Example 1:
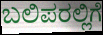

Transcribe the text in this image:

ಬಲಿಪರಲ್ಲಿಗೆ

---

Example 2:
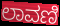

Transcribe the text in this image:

ಲಾವಣಿ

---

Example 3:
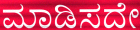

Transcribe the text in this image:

ಮಾಡಿಸದೇ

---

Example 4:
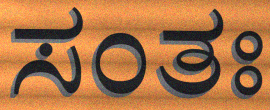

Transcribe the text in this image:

ಸಂತಃ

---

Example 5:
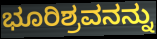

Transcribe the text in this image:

ಭೂರಿಶ್ರವನನ್ನು